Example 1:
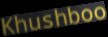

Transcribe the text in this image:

Khushboo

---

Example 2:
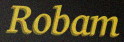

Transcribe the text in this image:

Robam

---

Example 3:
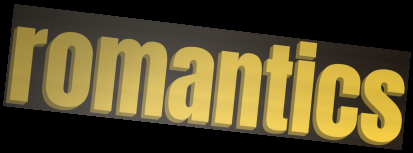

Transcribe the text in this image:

romantics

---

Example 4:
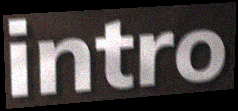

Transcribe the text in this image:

intro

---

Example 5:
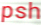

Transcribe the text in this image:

psh